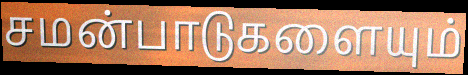
சமன்பாடுகளையும்